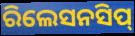
ରିଲେସନସିପ୍